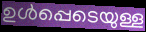
ഉൾപ്പെടെയുള്ള